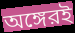
অঙ্গেরই